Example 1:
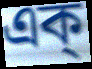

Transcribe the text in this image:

এক্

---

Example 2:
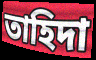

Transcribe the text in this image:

তাহিদা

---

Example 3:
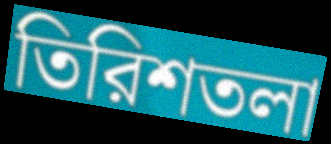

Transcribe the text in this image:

তিরিশতলা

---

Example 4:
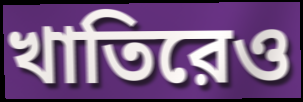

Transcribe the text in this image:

খাতিরেও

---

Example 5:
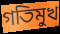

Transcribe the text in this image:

গতিমুখ